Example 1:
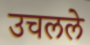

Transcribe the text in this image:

उचलले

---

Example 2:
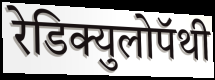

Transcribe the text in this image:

रेडिक्युलोपॅथी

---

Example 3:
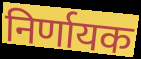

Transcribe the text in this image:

निर्णायक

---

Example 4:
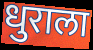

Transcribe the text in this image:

धुराला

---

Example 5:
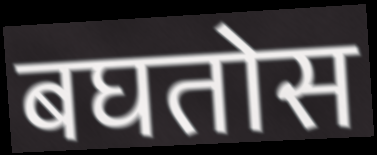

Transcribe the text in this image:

बघतोस